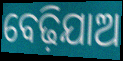
ବେଢ଼ିଯାଅ